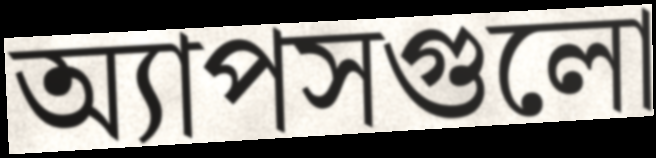
অ্যাপসগুলো